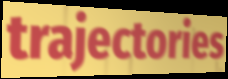
trajectories